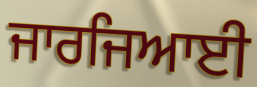
ਜਾਰਜਿਆਈ